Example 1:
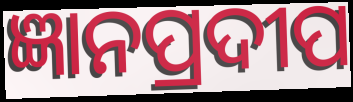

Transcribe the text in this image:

ଜ୍ଞାନପ୍ରଦୀପ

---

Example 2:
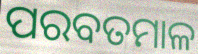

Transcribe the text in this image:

ପରବତମାଳ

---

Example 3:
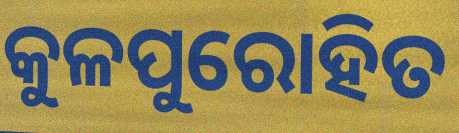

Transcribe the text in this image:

କୁଳପୁରୋହିତ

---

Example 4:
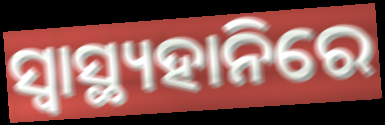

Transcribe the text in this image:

ସ୍ୱାସ୍ଥ୍ୟହାନିରେ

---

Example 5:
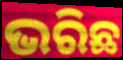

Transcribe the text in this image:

ଭରିଛ